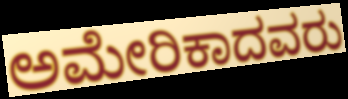
ಅಮೇರಿಕಾದವರು